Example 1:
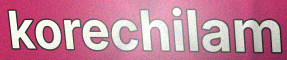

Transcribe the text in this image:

korechilam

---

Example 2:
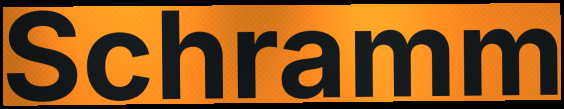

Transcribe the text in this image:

Schramm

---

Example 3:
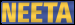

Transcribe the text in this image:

NEETA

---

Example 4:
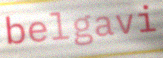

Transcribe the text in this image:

belgavi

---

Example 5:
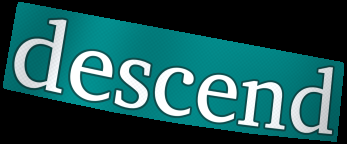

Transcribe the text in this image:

descend